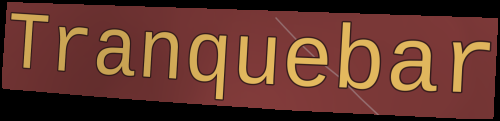
Tranquebar